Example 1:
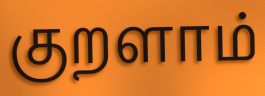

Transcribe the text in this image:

குறளாம்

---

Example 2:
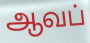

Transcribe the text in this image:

ஆவப்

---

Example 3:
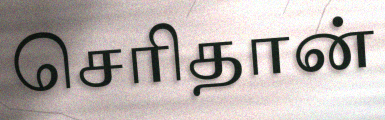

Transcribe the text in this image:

செரிதான்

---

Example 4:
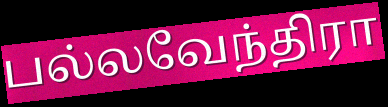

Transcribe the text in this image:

பல்லவேந்திரா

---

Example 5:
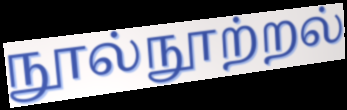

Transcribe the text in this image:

நூல்நூற்றல்